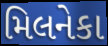
મિલનેકા